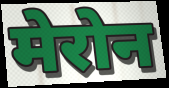
मेरोन